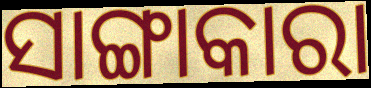
ସାଙ୍ଗାକାରା